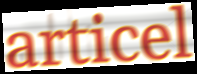
articel